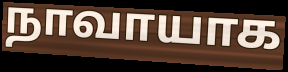
நாவாயாக